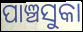
ପାଞ୍ଚସୁକା